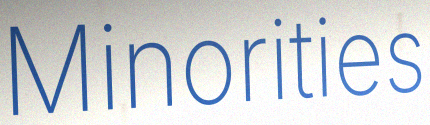
Minorities